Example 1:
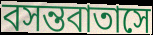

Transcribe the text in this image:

বসন্তবাতাসে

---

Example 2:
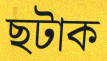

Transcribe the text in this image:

ছটাক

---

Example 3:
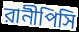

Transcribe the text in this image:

রানীপিসি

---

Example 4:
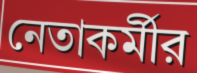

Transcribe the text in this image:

নেতাকর্মীর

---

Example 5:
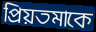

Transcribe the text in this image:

প্রিয়তমাকে